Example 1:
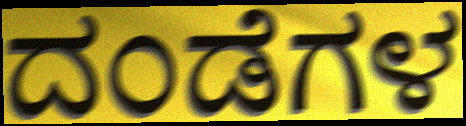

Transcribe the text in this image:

ದಂಡೆಗಳ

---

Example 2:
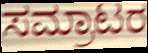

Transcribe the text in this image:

ಸಮ್ರಾಟರ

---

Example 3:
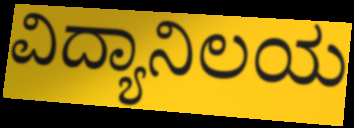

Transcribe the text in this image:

ವಿದ್ಯಾನಿಲಯ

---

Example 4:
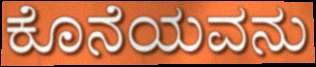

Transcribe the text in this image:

ಕೊನೆಯವನು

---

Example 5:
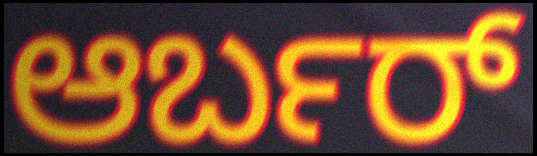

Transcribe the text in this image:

ಆರ್ಬರ್